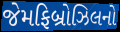
જેમફિબ્રોઝિલનો